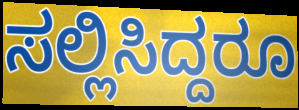
ಸಲ್ಲಿಸಿದ್ದರೂ